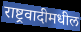
राष्ट्रवादीमधील